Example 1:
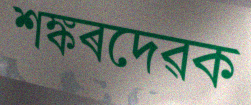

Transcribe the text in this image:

শঙ্কৰদেৱক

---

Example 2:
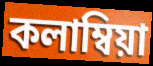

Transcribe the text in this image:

কলাম্বিয়া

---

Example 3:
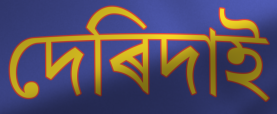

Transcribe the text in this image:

দেৰিদাই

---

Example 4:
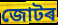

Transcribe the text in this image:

জোটৰ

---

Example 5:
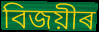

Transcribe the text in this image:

বিজয়ীৰ